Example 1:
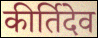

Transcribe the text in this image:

कीर्तिदेव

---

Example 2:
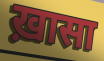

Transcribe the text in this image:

ख़ासा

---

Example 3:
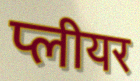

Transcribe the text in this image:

प्लीयर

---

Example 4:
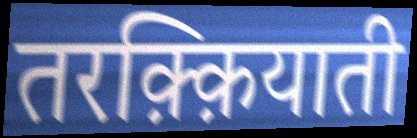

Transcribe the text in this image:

तरक़्क़ियाती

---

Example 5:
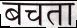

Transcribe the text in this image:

बचता